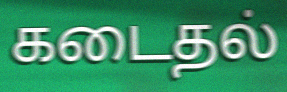
கடைதல்